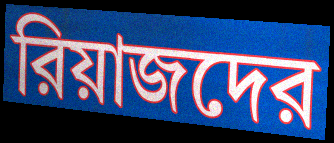
রিয়াজদের